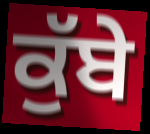
ਕੁੱਬੇ